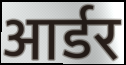
आर्डर